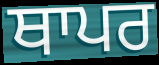
ਥਾਪਰ